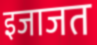
इजाजत